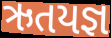
ઋતયજ્ઞ